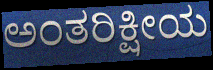
ಅಂತರಿಕ್ಷೀಯ